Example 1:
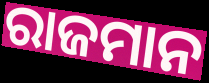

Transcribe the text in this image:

ରାଜମାନ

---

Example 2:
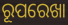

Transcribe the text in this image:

ରୂପରେଖା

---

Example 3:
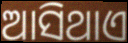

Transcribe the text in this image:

ଆସିଥାଏ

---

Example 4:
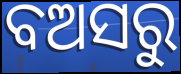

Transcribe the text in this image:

ବଅସରୁ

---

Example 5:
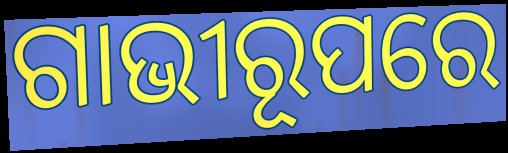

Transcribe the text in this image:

ଗାଭୀରୂପରେ